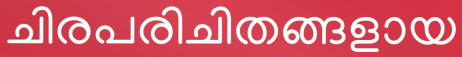
ചിരപരിചിതങ്ങളായ